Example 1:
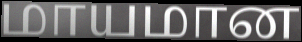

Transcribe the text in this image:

மாயமான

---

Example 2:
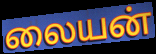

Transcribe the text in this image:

லையன்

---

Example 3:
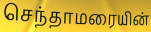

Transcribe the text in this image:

செந்தாமரையின்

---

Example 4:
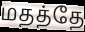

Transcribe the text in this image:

மதத்தே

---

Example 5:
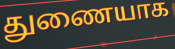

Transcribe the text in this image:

துணையாக